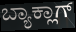
ಬ್ಯಾಕ್ಲಾಗ್